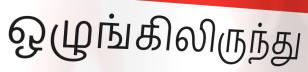
ஒழுங்கிலிருந்து